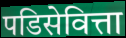
पडिसेवित्ता